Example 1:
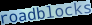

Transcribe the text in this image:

roadblocks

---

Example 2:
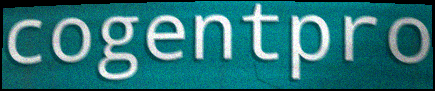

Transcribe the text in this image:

cogentpro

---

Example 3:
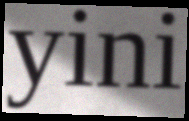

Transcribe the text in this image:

yini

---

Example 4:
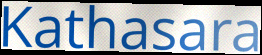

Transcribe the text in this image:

Kathasara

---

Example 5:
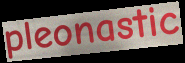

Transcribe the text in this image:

pleonastic